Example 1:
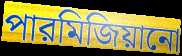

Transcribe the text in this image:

পারমিজিয়ানো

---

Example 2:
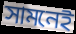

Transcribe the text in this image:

সামনেই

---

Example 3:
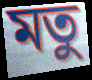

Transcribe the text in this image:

মতু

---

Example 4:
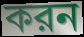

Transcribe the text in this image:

করন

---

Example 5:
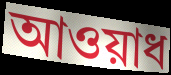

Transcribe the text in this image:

আওয়াধ